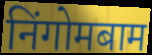
निंगोमबाम